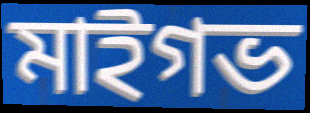
মাইগভ